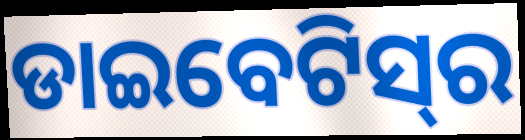
ଡାଇବେଟିସ୍‌ର